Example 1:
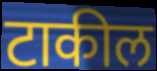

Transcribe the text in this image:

टाकील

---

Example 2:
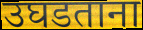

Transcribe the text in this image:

उघडताना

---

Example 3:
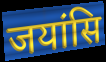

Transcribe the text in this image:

जयांसि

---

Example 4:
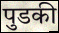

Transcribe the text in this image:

पुडकी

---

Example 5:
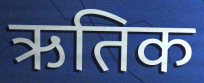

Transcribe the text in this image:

ऋतिक